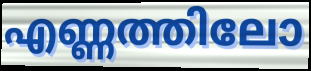
എണ്ണത്തിലോ